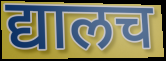
द्यालच